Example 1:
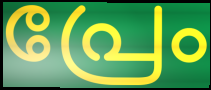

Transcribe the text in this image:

പ്രേം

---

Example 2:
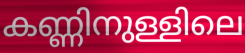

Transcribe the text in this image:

കണ്ണിനുള്ളിലെ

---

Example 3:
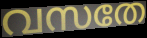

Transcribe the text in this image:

വസതേ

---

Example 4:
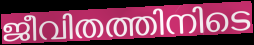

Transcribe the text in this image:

ജീവിതത്തിനിടെ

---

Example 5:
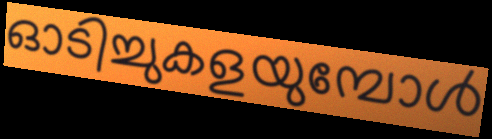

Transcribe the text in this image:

ഓടിച്ചുകളയുമ്പോൾ